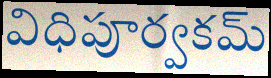
విధిపూర్వకమ్